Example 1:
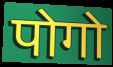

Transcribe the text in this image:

पोगो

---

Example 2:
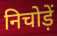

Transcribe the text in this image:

निचोड़ें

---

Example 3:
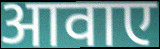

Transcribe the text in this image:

आवाए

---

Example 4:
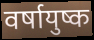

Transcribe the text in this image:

वर्षायुष्क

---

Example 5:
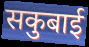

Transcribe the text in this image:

सकुबाई